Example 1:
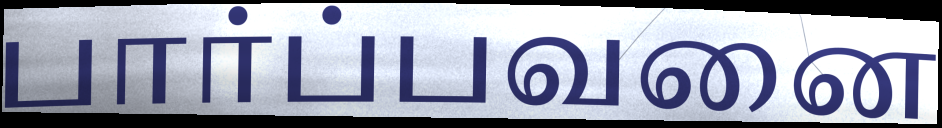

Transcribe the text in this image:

பார்ப்பவனை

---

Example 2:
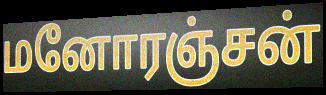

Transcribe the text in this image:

மனோரஞ்சன்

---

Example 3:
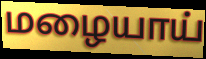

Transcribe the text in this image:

மழையாய்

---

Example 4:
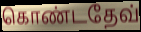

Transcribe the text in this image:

கொண்டதேவ்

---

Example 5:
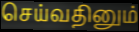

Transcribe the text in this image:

செய்வதினும்